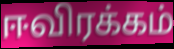
ஈவிரக்கம்